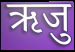
ऋजु